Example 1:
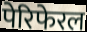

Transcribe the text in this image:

पेरिफेरल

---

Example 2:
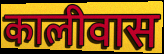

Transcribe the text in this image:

कालीवास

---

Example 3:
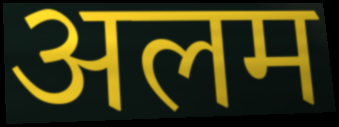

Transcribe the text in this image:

अलम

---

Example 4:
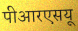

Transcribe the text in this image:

पीआरएसयू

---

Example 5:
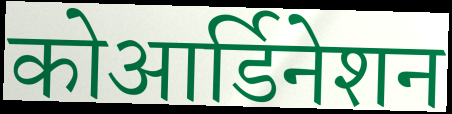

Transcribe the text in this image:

कोआर्डिनेशन